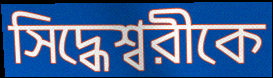
সিদ্ধেশ্বরীকে